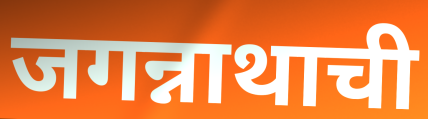
जगन्नाथाची